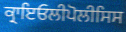
ਕ੍ਰਾਇਓਲੀਪੋਲੀਸਿਸ